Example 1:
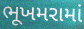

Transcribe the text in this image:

ભૂખમરામાં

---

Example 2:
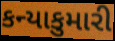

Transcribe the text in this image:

કન્યાકુમારી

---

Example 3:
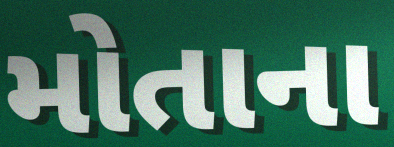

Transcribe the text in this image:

મોતાના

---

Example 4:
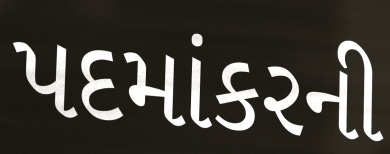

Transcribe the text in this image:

પદમાંકરની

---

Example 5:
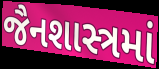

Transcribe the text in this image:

જૈનશાસ્ત્રમાં